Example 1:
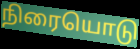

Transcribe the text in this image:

நிரையொடு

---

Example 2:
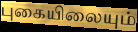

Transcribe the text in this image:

புகையிலையும்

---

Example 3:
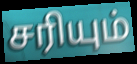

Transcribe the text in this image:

சரியும்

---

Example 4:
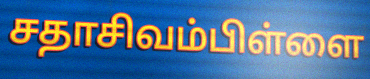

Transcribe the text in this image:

சதாசிவம்பிள்ளை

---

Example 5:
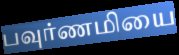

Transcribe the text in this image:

பவுர்ணமியை